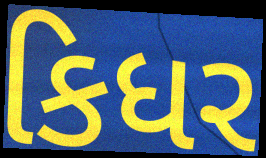
કિધર